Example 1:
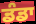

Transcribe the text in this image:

ਡੰਡਾ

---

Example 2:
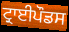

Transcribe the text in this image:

ਟ੍ਰਾਈਪੌਡਸ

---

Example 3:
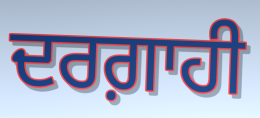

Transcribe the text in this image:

ਦਰਗ਼ਾਹੀ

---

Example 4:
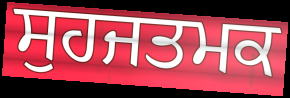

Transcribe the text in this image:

ਸੁਹਜਤਮਕ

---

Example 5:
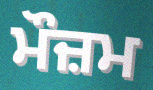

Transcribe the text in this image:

ਮੌਜ਼ਮ